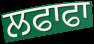
ਲਫਾਫਾ